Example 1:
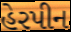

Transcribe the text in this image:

હેરપીન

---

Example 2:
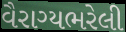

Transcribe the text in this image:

વૈરાગ્યભરેલી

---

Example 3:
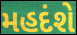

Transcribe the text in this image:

મહદંશે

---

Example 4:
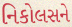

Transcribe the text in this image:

નિકોલસને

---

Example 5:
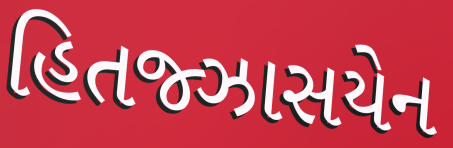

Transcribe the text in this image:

હિતજ્ઝાસયેન